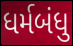
ધર્મબંધુ